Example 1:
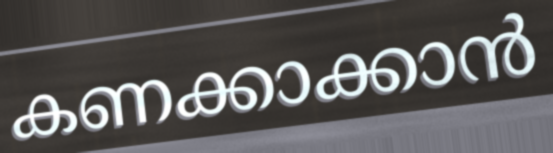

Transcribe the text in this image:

കണക്കാക്കാൻ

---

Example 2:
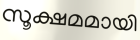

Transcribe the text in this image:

സൂക്ഷമമായി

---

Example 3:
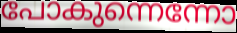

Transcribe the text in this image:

പോകുന്നെന്നോ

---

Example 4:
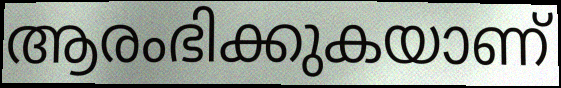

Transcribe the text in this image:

ആരംഭിക്കുകയാണ്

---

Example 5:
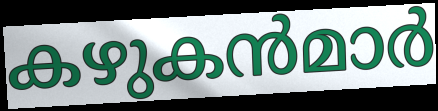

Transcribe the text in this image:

കഴുകൻമാർ